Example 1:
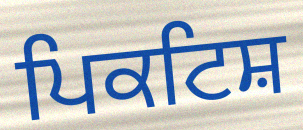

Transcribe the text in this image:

ਪਿਕਟਿਸ਼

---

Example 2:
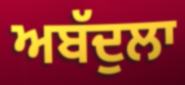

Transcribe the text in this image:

ਅਬੱਦੁਲਾ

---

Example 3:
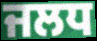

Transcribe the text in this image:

ਜਲਧ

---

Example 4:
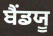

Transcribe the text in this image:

ਬੈਂਡਯੂ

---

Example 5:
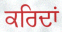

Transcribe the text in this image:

ਕਰਿਦਾਂ